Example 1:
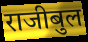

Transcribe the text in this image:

राजीबुल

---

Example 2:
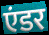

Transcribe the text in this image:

एंडर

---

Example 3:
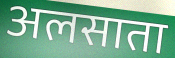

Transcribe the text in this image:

अलसाता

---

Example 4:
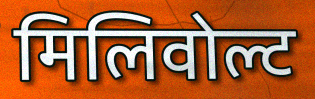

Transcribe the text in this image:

मिलिवोल्ट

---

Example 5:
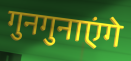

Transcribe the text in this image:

गुनगुनाएंगे